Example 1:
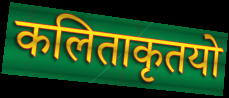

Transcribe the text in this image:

कलिताकृतयो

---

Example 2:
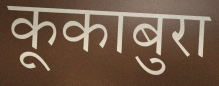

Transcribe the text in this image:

कूकाबुरा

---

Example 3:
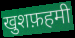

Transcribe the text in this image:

खुशफ़हमी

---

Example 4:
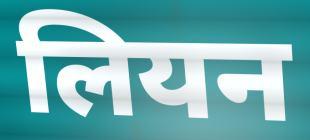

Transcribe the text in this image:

लियन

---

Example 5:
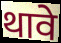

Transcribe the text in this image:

थावे